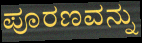
ಪೂರಣವನ್ನು